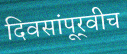
दिवसांपूर्वीच